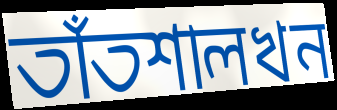
তাঁতশালখন